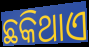
ଛକିଥାଏ